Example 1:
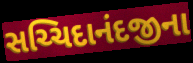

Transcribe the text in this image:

સચ્ચિદાનંદજીના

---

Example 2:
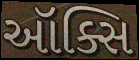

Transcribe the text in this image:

ઑક્સિ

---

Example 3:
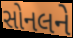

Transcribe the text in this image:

સોનલને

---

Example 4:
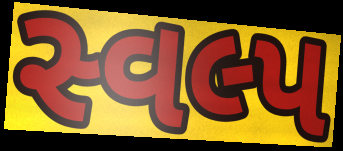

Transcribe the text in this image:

સ્વલ્પ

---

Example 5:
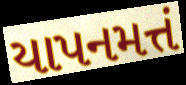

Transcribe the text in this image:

યાપનમત્તં